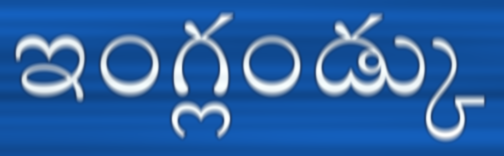
ఇంగ్లండ్కు